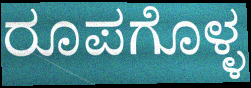
ರೂಪಗೊಳ್ಳ